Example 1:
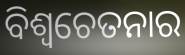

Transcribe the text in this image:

ବିଶ୍ଵଚେତନାର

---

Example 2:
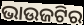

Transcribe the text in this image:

ଭାଉଜଟିର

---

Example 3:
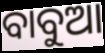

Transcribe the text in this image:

ବାବୁଆ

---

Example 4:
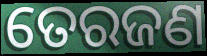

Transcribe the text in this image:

ତେରଜଣ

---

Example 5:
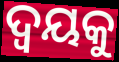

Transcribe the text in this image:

ଦ୍ଵୟକୁ